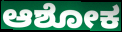
ಆಶೋಕ